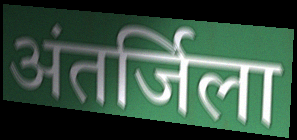
अंतर्जिला